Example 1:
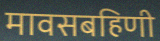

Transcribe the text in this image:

मावसबहिणी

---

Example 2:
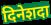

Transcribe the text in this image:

दिनेशदा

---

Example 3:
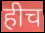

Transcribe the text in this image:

हीच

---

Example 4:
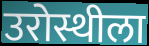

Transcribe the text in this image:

उरोस्थीला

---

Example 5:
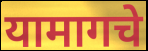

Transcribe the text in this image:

यामागचे